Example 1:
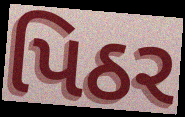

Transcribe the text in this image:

પિઠર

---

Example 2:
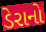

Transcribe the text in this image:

ડેરાનો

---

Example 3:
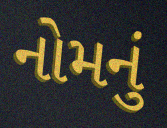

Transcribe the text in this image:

નોમનું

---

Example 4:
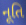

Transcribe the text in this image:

નૂતિ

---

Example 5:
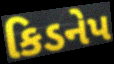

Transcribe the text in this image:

કિડનેપ